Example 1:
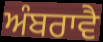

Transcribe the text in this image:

ਅੰਬਰਾਵੈ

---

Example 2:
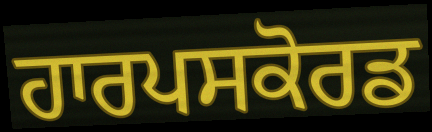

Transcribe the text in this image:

ਹਾਰਪਸਕੋਰਡ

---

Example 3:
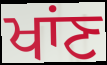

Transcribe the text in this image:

ਖਾਂਣ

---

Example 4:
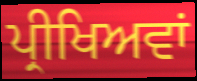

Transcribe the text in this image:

ਪ੍ਰੀਖਿਅਵਾਂ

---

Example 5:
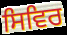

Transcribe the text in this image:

ਸਿਵਿਰ